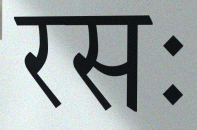
रसः